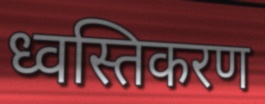
ध्वस्तिकरण